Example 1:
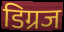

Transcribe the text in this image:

डिग्रज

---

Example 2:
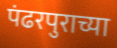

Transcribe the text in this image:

पंढरपुराच्या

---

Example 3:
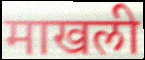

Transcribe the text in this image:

माखली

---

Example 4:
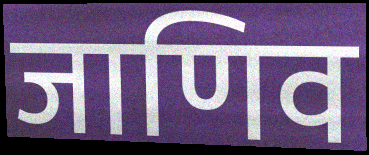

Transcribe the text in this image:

जाणिव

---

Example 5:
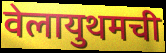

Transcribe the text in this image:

वेलायुथमची